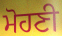
ਮੋਹਣੀ